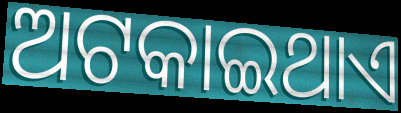
ଅଟକାଇଥାଏ